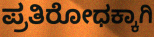
ಪ್ರತಿರೋಧಕ್ಕಾಗಿ